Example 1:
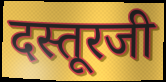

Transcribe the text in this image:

दस्तूरजी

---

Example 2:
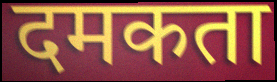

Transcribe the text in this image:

दमकता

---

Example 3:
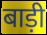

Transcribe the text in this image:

बाड़ी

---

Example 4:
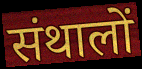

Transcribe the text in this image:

संथालों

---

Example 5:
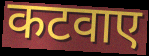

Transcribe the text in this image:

कटवाए